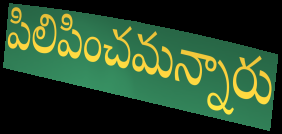
పిలిపించమన్నారు